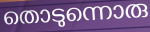
തൊടുന്നൊരു